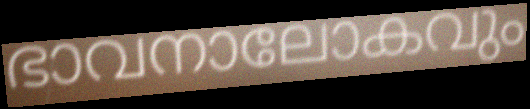
ഭാവനാലോകവും